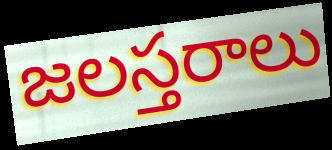
జలస్తరాలు